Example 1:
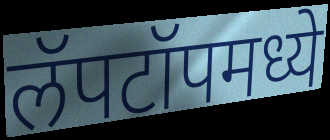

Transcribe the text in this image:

लॅपटॉपमध्ये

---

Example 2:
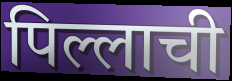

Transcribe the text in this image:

पिल्लाची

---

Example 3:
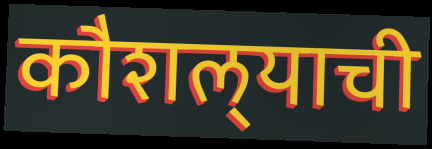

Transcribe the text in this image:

कौशल्याची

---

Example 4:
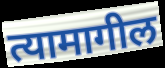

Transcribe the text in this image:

त्यामागील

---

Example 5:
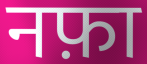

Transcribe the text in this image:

नफ़ा